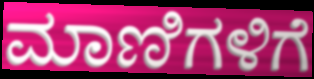
ಮಾಣಿಗಳಿಗೆ